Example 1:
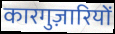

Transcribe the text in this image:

कारगुज़ारियों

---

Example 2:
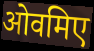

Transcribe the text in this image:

ओवमिए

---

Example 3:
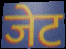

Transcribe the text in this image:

जेट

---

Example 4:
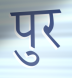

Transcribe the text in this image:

पुर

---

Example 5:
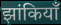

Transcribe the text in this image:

झांकियाँ